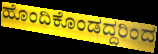
ಹೊಂದಿಕೊಂಡದ್ದರಿಂದ